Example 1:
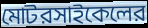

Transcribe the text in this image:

মোটরসাইকেলের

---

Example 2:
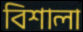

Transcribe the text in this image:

বিশালা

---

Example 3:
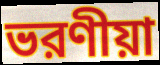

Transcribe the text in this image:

ভরণীয়া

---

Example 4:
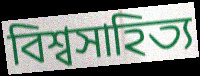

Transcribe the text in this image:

বিশ্বসাহিত্য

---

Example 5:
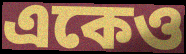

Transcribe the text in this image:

একেও